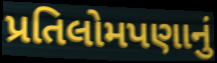
પ્રતિલોમપણાનું